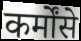
कर्मोंसे